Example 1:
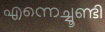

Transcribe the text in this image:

എന്നെച്ചൂണ്ടി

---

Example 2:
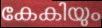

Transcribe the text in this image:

കേകിയും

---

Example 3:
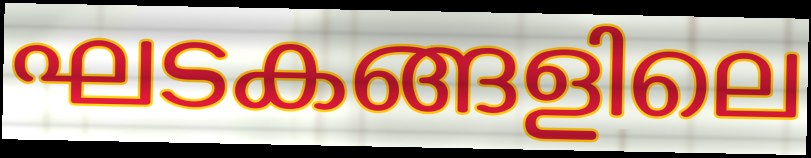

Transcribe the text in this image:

ഘടകങ്ങളിലെ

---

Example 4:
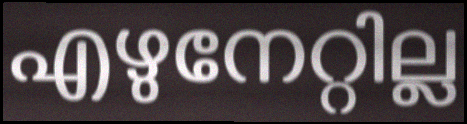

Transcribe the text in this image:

എഴുനേറ്റില്ല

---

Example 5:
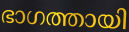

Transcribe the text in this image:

ഭാഗത്തായി